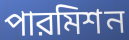
পারমিশন